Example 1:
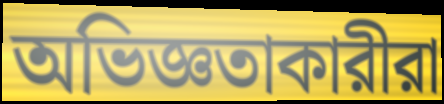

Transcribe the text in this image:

অভিজ্ঞতাকারীরা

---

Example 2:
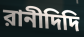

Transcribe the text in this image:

রানীদিদি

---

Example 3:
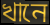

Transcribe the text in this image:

খানে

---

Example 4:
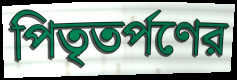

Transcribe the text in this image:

পিতৃতর্পণের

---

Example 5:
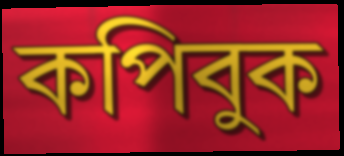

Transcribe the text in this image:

কপিবুক